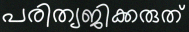
പരിത്യജിക്കരുത്